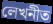
লেখনীত